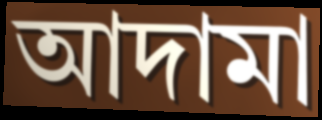
আদামা